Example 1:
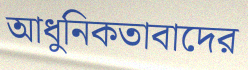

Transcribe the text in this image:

আধুনিকতাবাদের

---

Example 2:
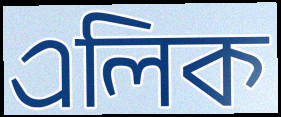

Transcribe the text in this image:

এলিক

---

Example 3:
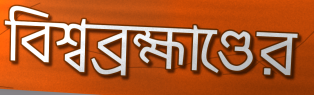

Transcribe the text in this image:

বিশ্বব্রহ্মাণ্ডের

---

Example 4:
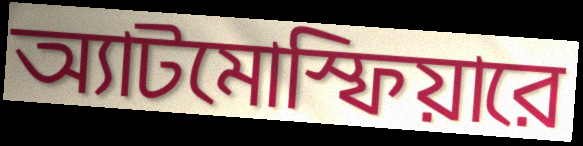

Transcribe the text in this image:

অ্যাটমোস্ফিয়ারে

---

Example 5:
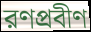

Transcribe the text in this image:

রণপ্রবীণ